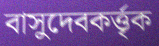
বাসুদেবকর্ত্তৃক